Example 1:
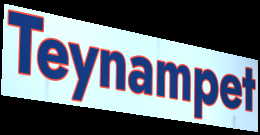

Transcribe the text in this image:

Teynampet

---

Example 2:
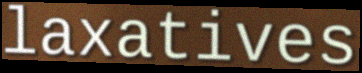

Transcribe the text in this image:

laxatives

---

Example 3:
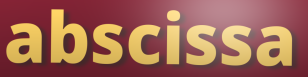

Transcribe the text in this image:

abscissa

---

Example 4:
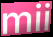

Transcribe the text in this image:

mii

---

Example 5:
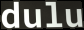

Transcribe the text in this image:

dulu